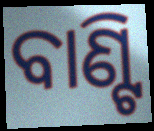
ବାଣ୍ଟି